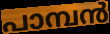
പാമ്പൻ